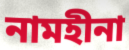
নামহীনা